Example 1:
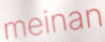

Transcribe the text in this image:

meinan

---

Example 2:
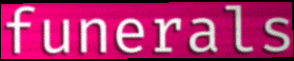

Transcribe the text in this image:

funerals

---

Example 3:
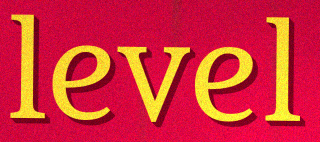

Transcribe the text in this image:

level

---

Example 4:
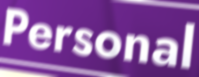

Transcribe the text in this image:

Personal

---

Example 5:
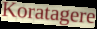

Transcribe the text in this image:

Koratagere